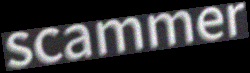
scammer